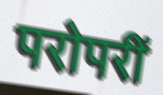
परोपरीं